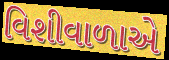
વિશીવાળાએ